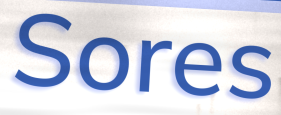
Sores